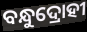
ବନ୍ଧୁଦ୍ରୋହୀ